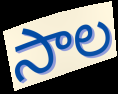
సాల